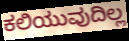
ಕಲಿಯುವುದಿಲ್ಲ